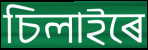
চিলাইৰে